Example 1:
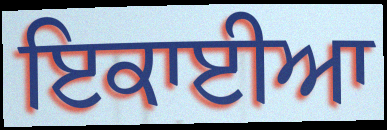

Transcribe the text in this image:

ਇਕਾਈਆ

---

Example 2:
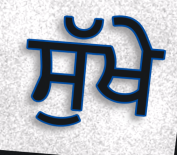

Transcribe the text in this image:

ਸੁੱਖੇ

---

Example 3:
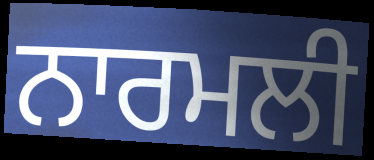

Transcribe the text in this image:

ਨਾਰਮਲੀ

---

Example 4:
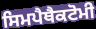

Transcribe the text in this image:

ਸਿਮਪੈਥੈਕਟੋਮੀ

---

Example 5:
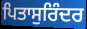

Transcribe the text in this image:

ਪਿਤਾਸੁਰਿੰਦਰ